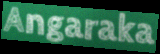
Angaraka